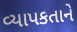
વ્યાપકતાને